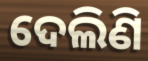
ଦେଲିଣି